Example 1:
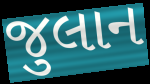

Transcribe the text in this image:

જુલાન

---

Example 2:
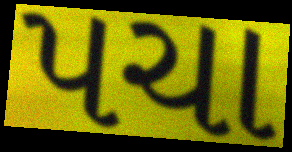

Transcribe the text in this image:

પચા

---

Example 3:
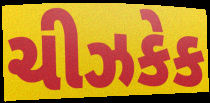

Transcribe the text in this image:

ચીઝકેક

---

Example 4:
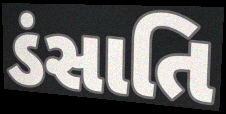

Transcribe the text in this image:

ડંસાતિ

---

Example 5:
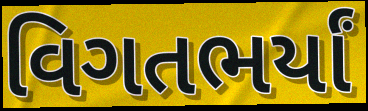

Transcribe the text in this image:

વિગતભર્યાં